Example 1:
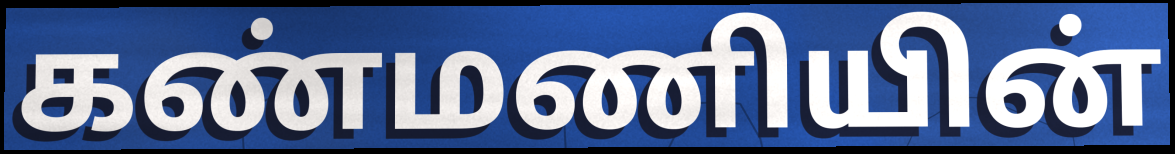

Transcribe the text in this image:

கண்மணியின்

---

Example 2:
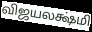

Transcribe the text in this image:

விஜயலக்ஷ்மி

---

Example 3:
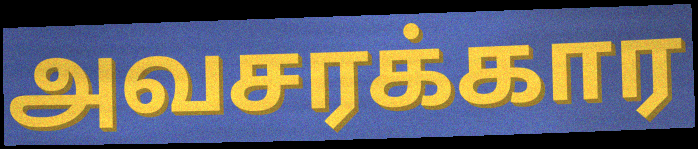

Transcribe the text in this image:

அவசரக்கார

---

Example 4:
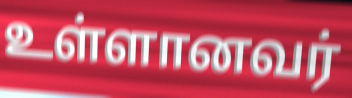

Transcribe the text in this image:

உள்ளானவர்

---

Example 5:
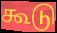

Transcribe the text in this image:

கூடு